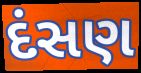
દંસણ